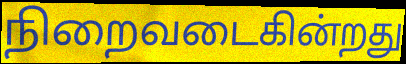
நிறைவடைகின்றது